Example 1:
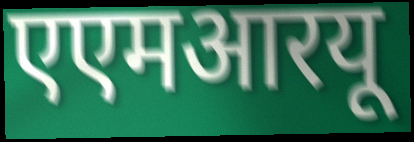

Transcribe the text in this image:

एएमआरयू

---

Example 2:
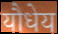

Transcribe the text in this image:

यौधेय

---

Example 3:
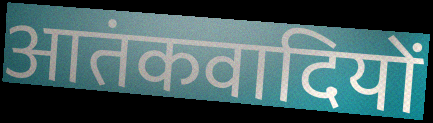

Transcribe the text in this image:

आतंकवादियों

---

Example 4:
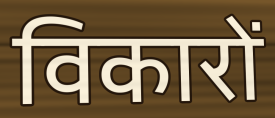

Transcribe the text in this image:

विकारों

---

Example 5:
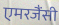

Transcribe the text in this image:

एमरजैंसी